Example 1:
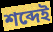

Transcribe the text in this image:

শব্দেই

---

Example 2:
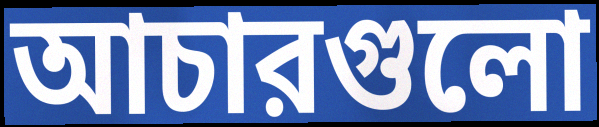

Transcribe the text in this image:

আচারগুলো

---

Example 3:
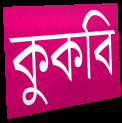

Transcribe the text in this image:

কুকবি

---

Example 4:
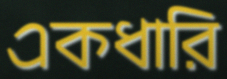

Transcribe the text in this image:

একধারি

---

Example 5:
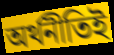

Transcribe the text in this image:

অর্থনীতিই